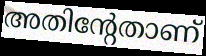
അതിന്റേതാണ്